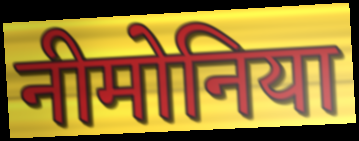
नीमोनिया